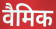
वैमिक